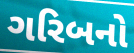
ગરિબનો